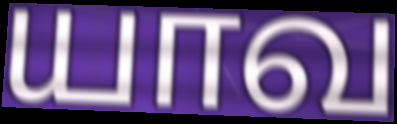
யாவ